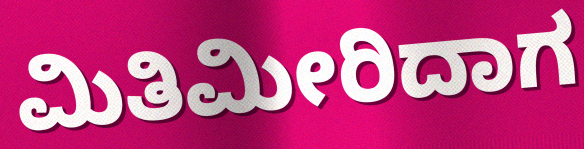
ಮಿತಿಮೀರಿದಾಗ